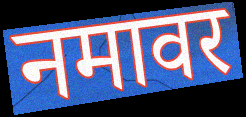
नमावर